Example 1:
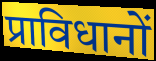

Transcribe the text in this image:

प्राविधानों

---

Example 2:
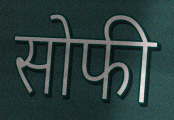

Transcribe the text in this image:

सोफी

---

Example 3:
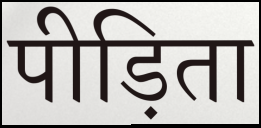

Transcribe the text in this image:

पीड़िता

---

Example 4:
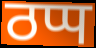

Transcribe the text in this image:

ठप्प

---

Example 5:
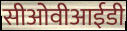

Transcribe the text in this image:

सीओवीआईडी